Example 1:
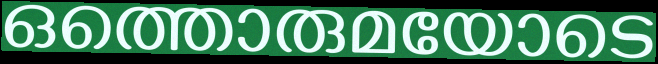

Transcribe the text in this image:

ഒത്തൊരുമയോടെ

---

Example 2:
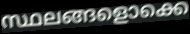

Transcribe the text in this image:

സ്ഥലങ്ങളൊക്കെ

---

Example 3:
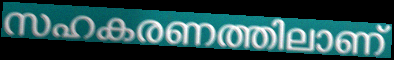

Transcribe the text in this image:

സഹകരണത്തിലാണ്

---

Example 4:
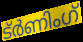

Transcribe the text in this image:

ട്ർണിംഗ്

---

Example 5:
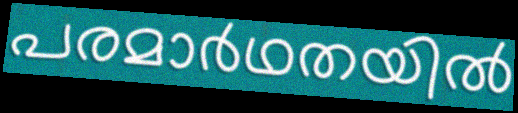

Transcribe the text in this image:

പരമാർഥതയിൽ